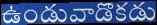
ఉండువాడొకడు